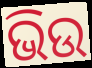
ଭିଉ